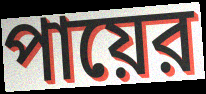
পায়ের